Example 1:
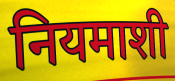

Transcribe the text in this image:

नियमाशी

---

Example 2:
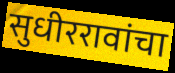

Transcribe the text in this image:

सुधीररावांचा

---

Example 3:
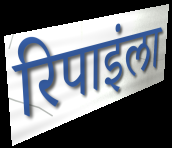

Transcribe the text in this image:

रिपाइंला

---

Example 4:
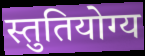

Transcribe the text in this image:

स्तुतियोग्य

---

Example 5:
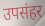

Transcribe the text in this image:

उपसंहर